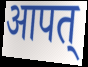
आपत्